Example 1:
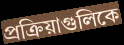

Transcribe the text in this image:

প্রক্রিয়াগুলিকে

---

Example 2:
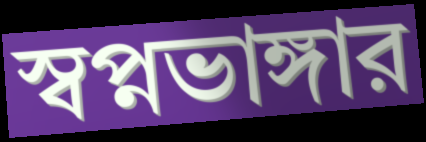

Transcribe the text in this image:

স্বপ্নভাঙ্গার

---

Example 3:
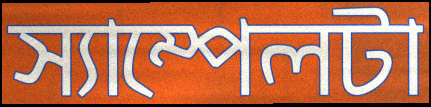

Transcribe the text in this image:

স্যাম্পেলটা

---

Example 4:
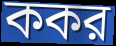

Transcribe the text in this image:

ককর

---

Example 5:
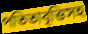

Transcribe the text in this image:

পতিতাবৃত্তিসহ